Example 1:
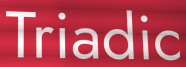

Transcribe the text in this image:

Triadic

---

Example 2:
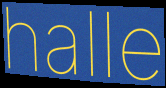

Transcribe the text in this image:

halle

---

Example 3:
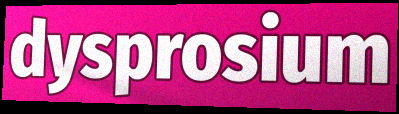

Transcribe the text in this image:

dysprosium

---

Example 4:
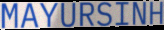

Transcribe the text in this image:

MAYURSINH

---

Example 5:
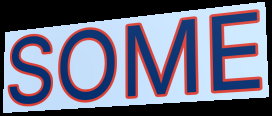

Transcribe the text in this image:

SOME